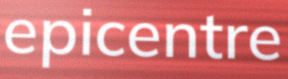
epicentre